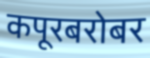
कपूरबरोबर